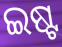
ଇଷ୍ଟ